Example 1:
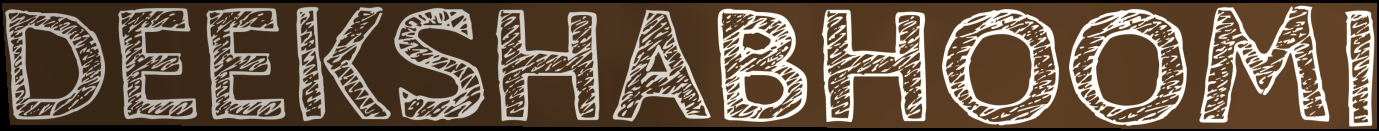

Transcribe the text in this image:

DEEKSHABHOOMI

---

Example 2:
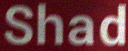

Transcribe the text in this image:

Shad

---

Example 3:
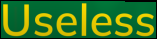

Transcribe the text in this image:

Useless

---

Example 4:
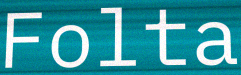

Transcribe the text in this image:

Folta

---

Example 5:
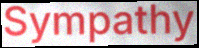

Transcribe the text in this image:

Sympathy